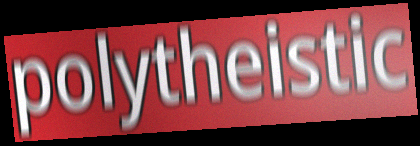
polytheistic